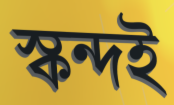
স্কন্দই